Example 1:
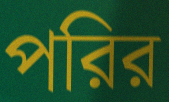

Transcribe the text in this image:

পরির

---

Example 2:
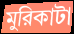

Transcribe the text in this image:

মুরিকাটা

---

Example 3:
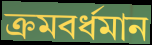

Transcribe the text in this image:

ক্রমবর্ধমান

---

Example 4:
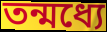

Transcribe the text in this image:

তন্মধ্যে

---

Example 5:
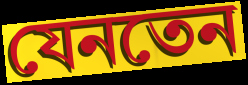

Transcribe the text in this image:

যেনতেন